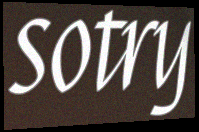
sotry